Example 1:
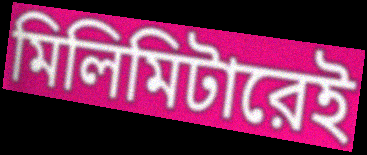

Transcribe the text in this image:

মিলিমিটারেই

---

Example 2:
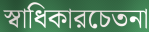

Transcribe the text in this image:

স্বাধিকারচেতনা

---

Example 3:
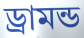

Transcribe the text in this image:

ড্রামন্ড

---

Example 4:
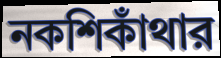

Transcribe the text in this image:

নকশিকাঁথার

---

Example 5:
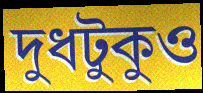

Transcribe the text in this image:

দুধটুকুও